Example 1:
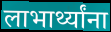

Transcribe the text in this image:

लाभार्थ्यांना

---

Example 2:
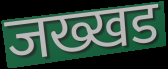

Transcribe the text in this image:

जख्खड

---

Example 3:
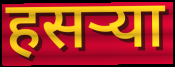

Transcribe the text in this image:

हसऱ्या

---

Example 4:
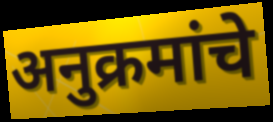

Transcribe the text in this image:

अनुक्रमांचे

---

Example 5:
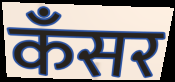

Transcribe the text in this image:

कँसर